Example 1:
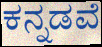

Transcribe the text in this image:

ಕನ್ನಡವೆ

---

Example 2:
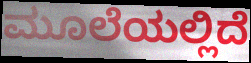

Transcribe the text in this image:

ಮೂಲೆಯಲ್ಲಿದೆ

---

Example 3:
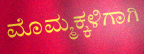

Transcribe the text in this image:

ಮೊಮ್ಮಕ್ಕಳಿಗಾಗಿ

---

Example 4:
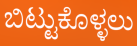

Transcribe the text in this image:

ಬಿಟ್ಟುಕೊಳ್ಳಲು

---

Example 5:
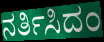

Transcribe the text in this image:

ನರ್ತಿಸಿದಂ